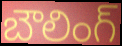
బౌలింగ్